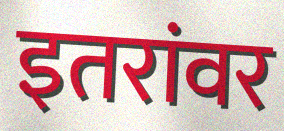
इतरांवर